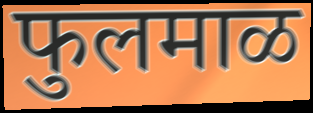
फुलमाळ